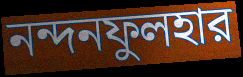
নন্দনফুলহার